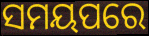
ସମୟପରେ